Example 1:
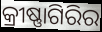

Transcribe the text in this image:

କ୍ରୀଷ୍ଣାଗିରିର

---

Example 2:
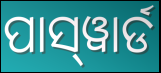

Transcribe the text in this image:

ପାସ୍‌ୱାର୍ଡ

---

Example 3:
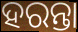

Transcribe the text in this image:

ହରନ୍ତା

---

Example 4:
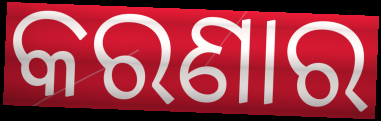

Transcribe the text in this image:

କରଣାର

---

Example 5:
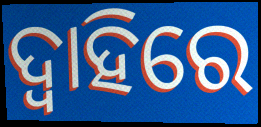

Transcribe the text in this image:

ଦ୍ୱାହିରେ